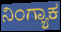
ನಿಂಗ್ಯಾಕ